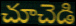
చూచెడి